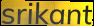
srikant